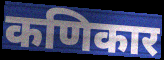
कणिकार